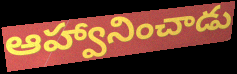
ఆహ్వానించాడు